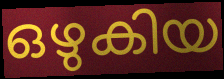
ഒഴുകിയ